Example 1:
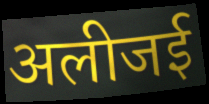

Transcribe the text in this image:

अलीजई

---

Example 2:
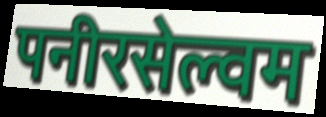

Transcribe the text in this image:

पनीरसेल्वम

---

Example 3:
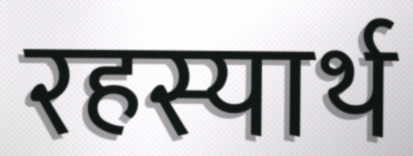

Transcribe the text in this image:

रहस्यार्थ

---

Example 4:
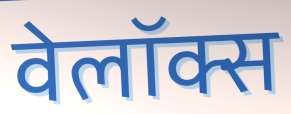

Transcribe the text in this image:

वेलॉक्स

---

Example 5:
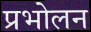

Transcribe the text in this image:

प्रभोलन